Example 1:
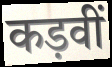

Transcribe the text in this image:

कड़वीं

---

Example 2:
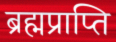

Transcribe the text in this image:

ब्रह्मप्राप्ति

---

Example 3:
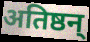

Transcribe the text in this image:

अतिष्ठन्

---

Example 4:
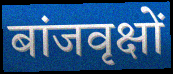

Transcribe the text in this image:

बांजवृक्षों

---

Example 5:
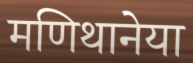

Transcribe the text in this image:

मणिथानेया